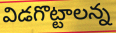
విడగొట్టాలన్న